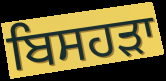
ਬਿਸਹੜਾ